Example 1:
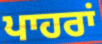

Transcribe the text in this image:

ਪਾਹਰਾਂ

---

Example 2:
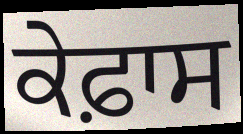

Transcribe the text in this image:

ਕੇਫ਼ਾਸ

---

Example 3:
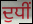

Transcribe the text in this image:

ਦੁਧੀਂ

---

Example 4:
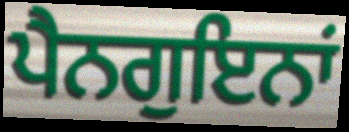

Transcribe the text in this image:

ਪੈਨਗੁਇਨਾਂ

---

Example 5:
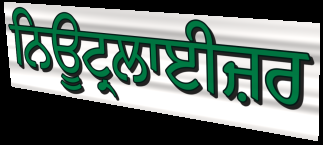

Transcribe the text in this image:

ਨਿਊਟ੍ਰਲਾਈਜ਼ਰ